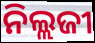
ନିଲ୍ଲଜୀ